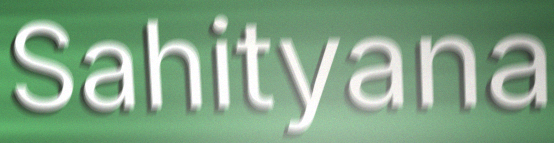
Sahityana